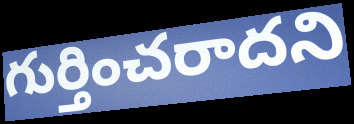
గుర్తించరాదని